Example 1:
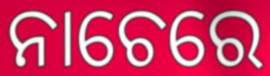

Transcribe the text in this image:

ନାଚେରେ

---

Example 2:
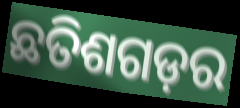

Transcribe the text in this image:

ଛତିଶଗଡ଼ର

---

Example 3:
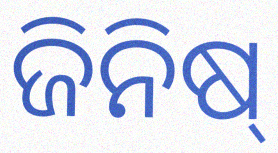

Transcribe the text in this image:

ଜିନିଷ୍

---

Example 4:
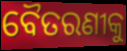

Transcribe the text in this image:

ବୈତରଣୀକୁ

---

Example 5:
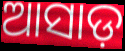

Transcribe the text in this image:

ଆସାଡ଼